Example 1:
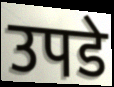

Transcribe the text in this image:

उपडे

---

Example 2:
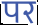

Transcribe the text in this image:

पर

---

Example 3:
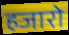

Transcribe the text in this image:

हजारो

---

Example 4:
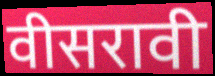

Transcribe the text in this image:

वीसरावी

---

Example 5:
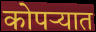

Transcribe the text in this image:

कोपर्‍यात